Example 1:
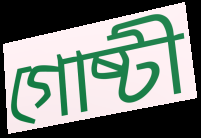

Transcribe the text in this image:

গোষ্টী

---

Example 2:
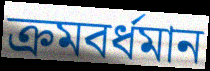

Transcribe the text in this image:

ক্ৰমবৰ্ধমান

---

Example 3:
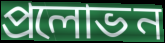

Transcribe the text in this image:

প্ৰলোভন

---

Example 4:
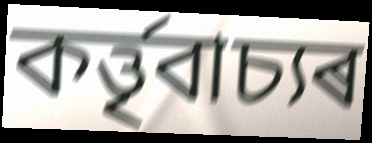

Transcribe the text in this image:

কৰ্ত্তৃবাচ্যৰ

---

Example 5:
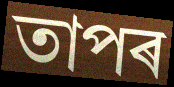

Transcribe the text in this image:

তাপৰ